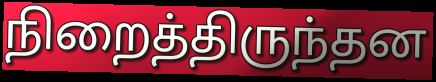
நிறைத்திருந்தன